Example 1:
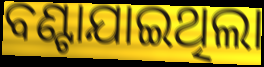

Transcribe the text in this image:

ବଣ୍ଟାଯାଇଥିଲା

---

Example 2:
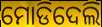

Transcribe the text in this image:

ମୋଡିଦେଲି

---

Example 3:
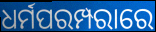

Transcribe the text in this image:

ଧର୍ମପରମ୍ପରାରେ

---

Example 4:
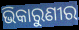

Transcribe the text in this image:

ଭିକାରୁଣୀର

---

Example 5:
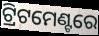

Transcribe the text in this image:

ଟ୍ରିଟମେଣ୍ଟରେ